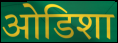
ओडिशा